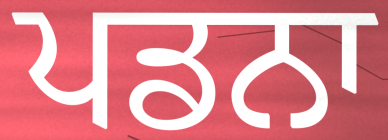
ਪਡਨਾ